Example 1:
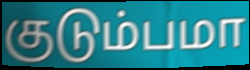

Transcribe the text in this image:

குடும்பமா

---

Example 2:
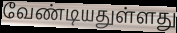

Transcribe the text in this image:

வேண்டியதுள்ளது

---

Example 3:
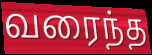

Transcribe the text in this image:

வரைந்த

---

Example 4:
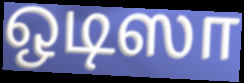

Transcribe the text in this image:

ஒடிஸா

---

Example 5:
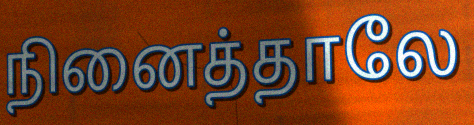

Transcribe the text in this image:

நினைத்தாலே